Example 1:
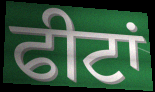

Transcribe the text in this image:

ਫੀਟਾਂ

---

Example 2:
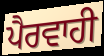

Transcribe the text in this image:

ਪੈਰਵਾਹੀ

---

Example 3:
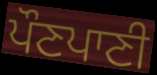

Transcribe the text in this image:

ਪੌਣਪਾਣੀ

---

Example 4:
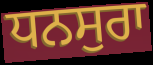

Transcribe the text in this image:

ਧਨਸੁਰਾ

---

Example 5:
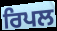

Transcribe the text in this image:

ਰਿਪਲ